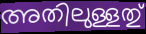
അതിലുള്ളതു്